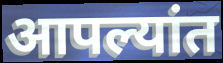
आपल्यांत